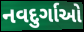
નવદુર્ગાઓ